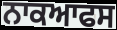
ਨਾਕਆਫਸ